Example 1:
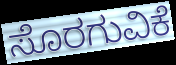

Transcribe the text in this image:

ಸೊರಗುವಿಕೆ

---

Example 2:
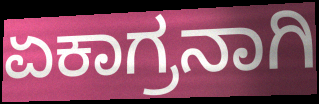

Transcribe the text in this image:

ಏಕಾಗ್ರನಾಗಿ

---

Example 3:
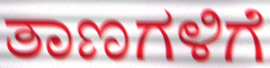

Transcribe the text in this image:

ತಾಣಗಳಿಗೆ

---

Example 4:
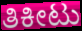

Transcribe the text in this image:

ತಿಕೀಟು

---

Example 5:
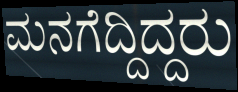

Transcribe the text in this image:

ಮನಗೆದ್ದಿದ್ದರು